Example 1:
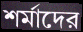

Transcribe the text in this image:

শর্মাদের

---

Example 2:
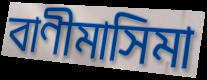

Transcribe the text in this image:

বাণীমাসিমা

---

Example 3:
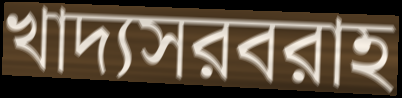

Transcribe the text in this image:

খাদ্যসরবরাহ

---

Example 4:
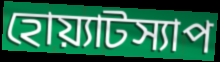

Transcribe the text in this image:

হোয়্যাটস্যাপ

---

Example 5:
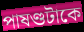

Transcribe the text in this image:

পাষণ্ডটাকে